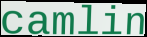
camlin